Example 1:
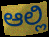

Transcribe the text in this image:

ಆಲ್ಲಿ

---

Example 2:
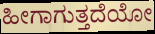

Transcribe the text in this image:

ಹೀಗಾಗುತ್ತದೆಯೋ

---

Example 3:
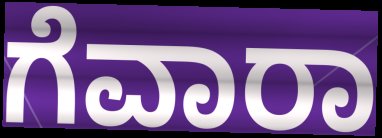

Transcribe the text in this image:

ಗೆವಾರಾ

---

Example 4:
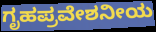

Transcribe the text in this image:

ಗೃಹಪ್ರವೇಶನೀಯ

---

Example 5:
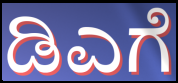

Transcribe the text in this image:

ಡಿಎಗೆ